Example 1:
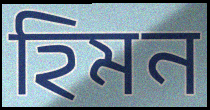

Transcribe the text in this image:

হিমন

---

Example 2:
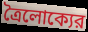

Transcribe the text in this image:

ত্রৈলোক্যের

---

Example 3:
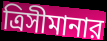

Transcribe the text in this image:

ত্রিসীমানার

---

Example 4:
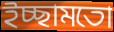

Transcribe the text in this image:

ইচ্ছামতো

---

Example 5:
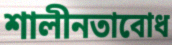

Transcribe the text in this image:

শালীনতাবোধ